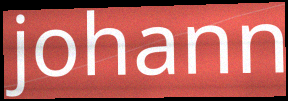
johann